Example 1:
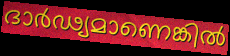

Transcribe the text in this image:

ദാർഢ്യമാണെങ്കിൽ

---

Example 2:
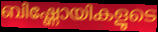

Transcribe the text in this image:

ബിഷ്ണോയികളുടെ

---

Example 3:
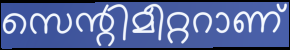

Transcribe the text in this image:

സെന്റിമീറ്ററാണ്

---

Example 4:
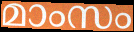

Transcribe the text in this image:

മാംസം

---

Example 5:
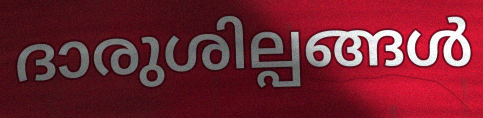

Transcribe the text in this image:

ദാരുശില്പങ്ങൾ